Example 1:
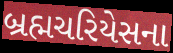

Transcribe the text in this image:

બ્રહ્મચરિયેસના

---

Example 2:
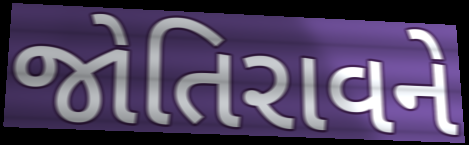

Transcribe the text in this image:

જોતિરાવને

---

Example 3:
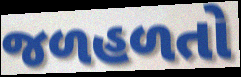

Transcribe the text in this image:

જળહળતો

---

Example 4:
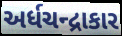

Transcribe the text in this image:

અર્ધચન્દ્રાકાર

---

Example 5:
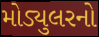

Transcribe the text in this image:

મોડ્યુલરનો